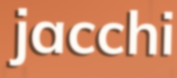
jacchi